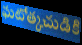
ఘటోత్కచుడికి